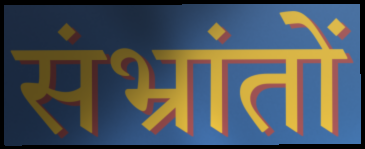
संभ्रांतों